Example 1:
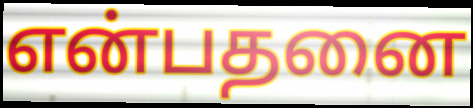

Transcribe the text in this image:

என்பதனை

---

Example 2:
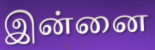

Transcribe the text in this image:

இன்னை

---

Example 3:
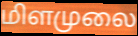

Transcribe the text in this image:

மிளமுலை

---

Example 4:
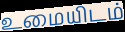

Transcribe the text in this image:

உமையிடம்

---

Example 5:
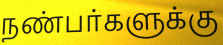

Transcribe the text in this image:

நண்பர்களுக்கு